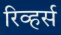
रिव्हर्स